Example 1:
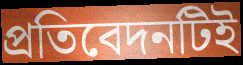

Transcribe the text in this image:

প্রতিবেদনটিই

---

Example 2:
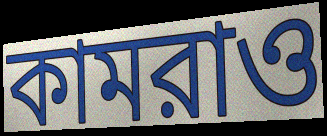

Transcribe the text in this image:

কামরাও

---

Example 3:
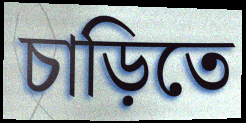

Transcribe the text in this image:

চাড়িতে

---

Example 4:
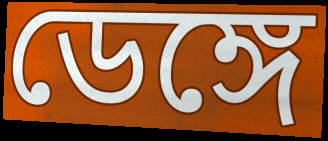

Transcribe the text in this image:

ডেঙ্গে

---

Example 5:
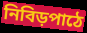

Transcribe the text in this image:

নিবিড়পাঠে